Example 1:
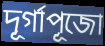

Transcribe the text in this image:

দূর্গাপূজো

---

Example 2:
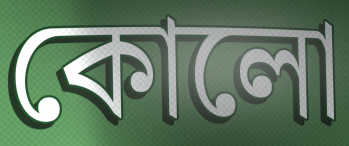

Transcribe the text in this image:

কোলো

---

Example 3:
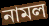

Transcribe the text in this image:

নামল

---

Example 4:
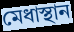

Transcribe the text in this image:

মেধাস্থান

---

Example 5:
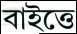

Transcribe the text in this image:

বাইত্তে